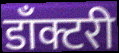
डाँक्टरी